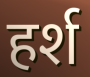
हर्श